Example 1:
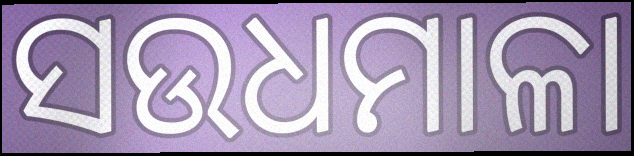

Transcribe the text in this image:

ସଉଧମାଳା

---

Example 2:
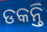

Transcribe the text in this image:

ଡକନ୍ତି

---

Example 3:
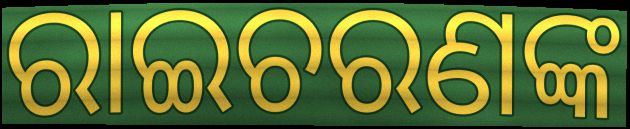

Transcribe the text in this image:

ରାଇଚରଣଙ୍କ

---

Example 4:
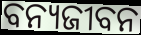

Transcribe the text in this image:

ବନ୍ୟଜୀବନ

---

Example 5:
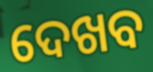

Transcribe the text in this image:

ଦେଖବ